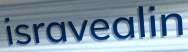
isravealin